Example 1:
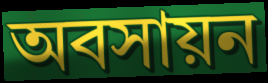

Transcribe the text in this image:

অবসায়ন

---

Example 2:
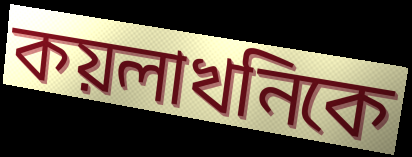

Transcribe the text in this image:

কয়লাখনিকে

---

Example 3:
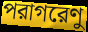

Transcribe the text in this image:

পরাগরেণু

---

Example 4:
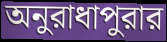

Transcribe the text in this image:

অনুরাধাপুরার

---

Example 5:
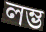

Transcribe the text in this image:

লম্ভ